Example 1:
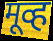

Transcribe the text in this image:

मूव्ह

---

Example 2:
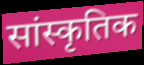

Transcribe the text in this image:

सांस्‍कृतिक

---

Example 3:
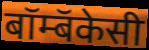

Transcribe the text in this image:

बॉम्बॅकेसी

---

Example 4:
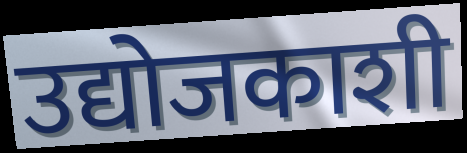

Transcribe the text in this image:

उद्योजकाशी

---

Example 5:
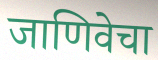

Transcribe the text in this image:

जाणिवेचा